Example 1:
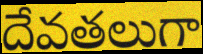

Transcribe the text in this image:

దేవతలుగా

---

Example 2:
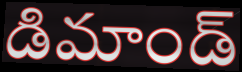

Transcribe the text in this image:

డిమాండ్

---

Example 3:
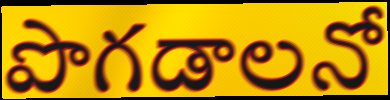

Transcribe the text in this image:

పొగడాలనో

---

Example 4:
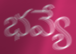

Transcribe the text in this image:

భవ్యే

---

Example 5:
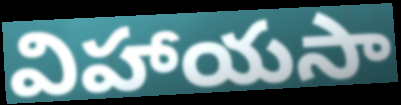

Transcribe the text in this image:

విహాయసా